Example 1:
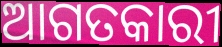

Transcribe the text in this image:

ଆଗତକାରୀ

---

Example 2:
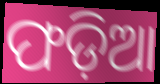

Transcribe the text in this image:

ଫଡ଼ିଆ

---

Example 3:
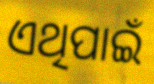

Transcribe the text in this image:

ଏଥିପାଇଁ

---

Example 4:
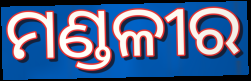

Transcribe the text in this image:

ମଣ୍ଡଳୀର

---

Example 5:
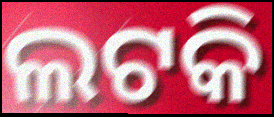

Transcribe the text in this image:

ଲଟକି